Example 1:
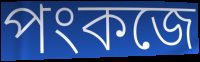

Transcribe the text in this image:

পংকজে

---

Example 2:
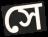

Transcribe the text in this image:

সে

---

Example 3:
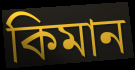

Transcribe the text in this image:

কিমান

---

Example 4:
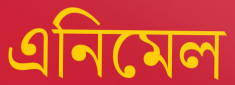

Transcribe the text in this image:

এনিমেল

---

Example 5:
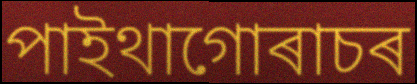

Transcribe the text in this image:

পাইথাগোৰাচৰ